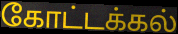
கோட்டக்கல்